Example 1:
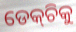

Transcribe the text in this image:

ଡେକ୍‌ଚିକୁ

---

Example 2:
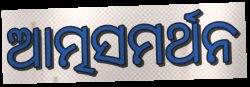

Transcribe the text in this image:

ଆତ୍ମସମର୍ଥନ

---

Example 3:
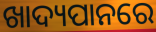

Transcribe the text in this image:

ଖାଦ୍ୟପାନରେ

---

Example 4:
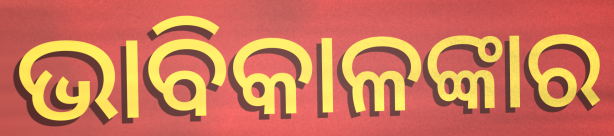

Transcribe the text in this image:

ଭାବିକାଳଙ୍କାର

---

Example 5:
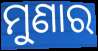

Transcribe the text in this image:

ମୁଣାର